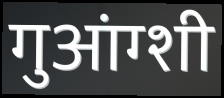
गुआंग्शी